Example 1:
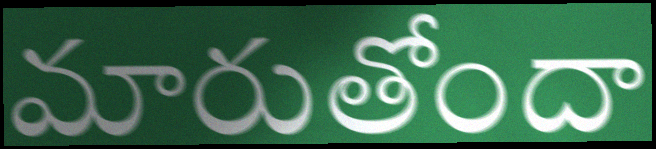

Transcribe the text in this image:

మారుతోందా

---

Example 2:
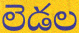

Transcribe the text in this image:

లెడల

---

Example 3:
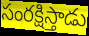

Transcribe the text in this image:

సంరక్షిస్తాడు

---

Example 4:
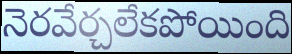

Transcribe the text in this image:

నెరవేర్చలేకపోయింది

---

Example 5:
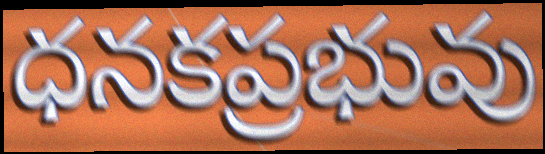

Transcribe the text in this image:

ధనకప్రభువు